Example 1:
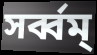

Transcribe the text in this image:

সৰ্ব্বম্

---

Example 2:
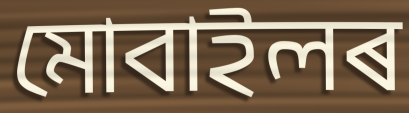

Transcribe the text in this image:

মোবাইলৰ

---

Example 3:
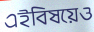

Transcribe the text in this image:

এইবিষয়েও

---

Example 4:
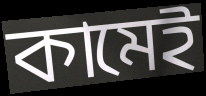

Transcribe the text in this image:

কামেই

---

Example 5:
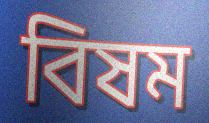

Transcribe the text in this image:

বিষম